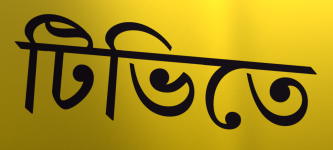
টিভিতে